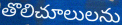
తొలిచూలులను